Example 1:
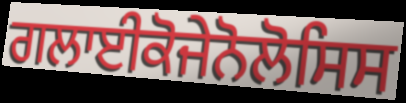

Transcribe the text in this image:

ਗਲਾਈਕੋਜੇਨੋਲੋਸਿਸ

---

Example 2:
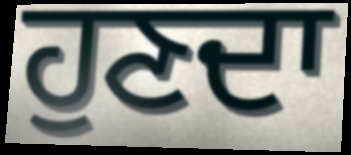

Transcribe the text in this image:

ਹੁਣਦਾ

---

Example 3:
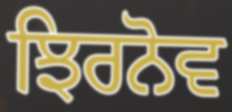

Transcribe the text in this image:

ਝਿਰਨੋਵ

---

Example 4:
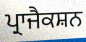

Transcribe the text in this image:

ਪ੍ਰਾਜੈਕਸ਼ਨ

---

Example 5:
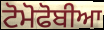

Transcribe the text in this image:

ਟੋਮੋਫੋਬੀਆ